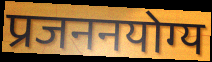
प्रजननयोग्य